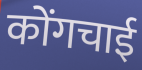
कोंगचाई